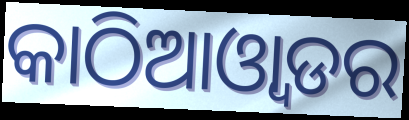
କାଠିଆଓ୍ୱାଡର